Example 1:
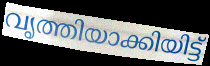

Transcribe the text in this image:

വൃത്തിയാക്കിയിട്ട്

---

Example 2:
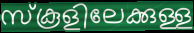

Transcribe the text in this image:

സ്കൂളിലേക്കുള്ള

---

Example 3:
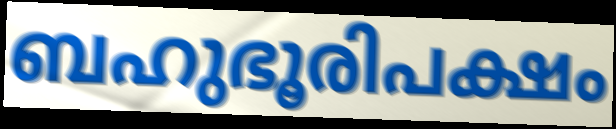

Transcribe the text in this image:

ബഹുഭൂരിപക്ഷം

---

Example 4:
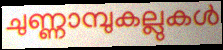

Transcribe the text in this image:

ചുണ്ണാമ്പുകല്ലുകൾ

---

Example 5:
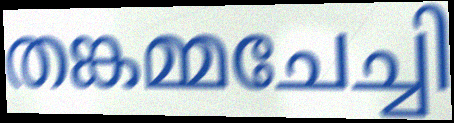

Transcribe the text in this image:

തങ്കമ്മചേച്ചി